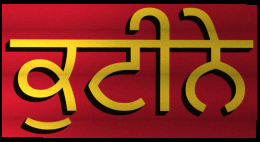
ਕੁਟੀਨੇ